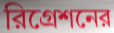
রিগ্রেশনের